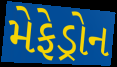
મેફેડ્રોન